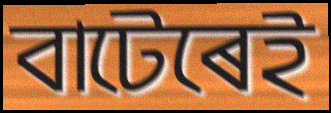
বাটেৰেই